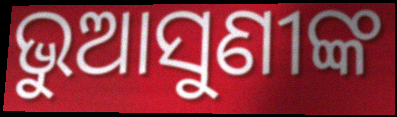
ଭୁଆସୁଣୀଙ୍କ